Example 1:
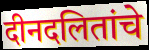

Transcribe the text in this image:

दीनदलितांचे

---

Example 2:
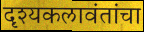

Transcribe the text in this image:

दृश्यकलावंतांचा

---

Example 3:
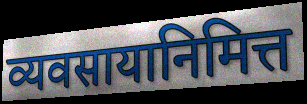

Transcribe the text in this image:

व्यवसायानिमित्त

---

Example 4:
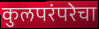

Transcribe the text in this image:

कुलपरंपरेचा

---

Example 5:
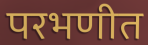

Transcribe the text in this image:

परभणीत